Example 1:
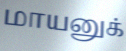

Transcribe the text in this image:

மாயனுக்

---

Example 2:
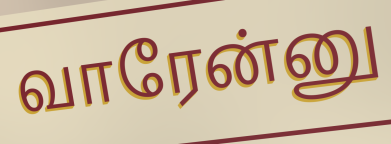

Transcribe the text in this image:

வாரேன்னு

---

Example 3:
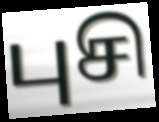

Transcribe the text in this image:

புசி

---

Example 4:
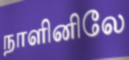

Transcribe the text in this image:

நாளினிலே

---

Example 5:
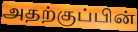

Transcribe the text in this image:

அதற்குப்பின்